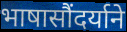
भाषासौंदर्याने